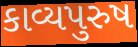
કાવ્યપુરુષ